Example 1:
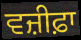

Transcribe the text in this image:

ਵਜ਼ੀਫ਼ਾ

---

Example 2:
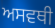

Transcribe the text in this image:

ਅਸਵਥੀ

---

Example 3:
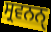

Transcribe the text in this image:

ਸ੍ਰਵਨਨੑ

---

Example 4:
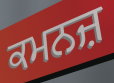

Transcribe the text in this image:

ਕਮਨਜ਼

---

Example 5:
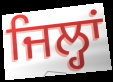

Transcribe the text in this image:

ਜਿਲ੍ਹਾਂ